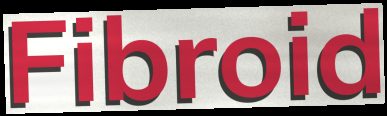
Fibroid